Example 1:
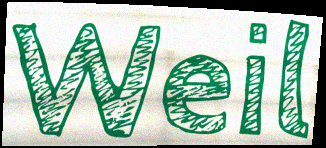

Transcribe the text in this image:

Weil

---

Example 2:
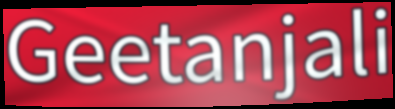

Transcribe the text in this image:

Geetanjali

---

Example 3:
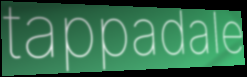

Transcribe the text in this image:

tappadale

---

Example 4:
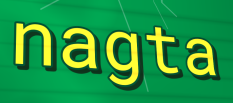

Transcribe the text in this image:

nagta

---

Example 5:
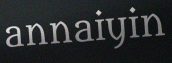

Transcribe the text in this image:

annaiyin